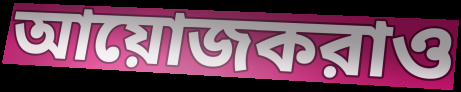
আয়োজকরাও